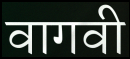
वागवी